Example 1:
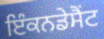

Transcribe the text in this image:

ਇੰਕਨਡੇਸੈਂਟ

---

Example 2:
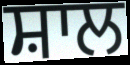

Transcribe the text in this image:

ਸ਼ਾਲ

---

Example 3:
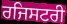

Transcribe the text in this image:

ਰਜਿਸਟਰੀ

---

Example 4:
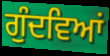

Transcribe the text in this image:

ਗੁੰਦਵਿਆਂ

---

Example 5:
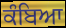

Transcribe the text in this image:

ਕੰਬਿਆ